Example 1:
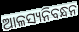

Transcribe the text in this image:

ଆଳସ୍ୟନିବନ୍ଧନ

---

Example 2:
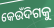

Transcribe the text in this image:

କେଉଁଦିଗକୁ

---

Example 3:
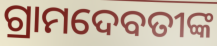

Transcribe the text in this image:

ଗ୍ରାମଦେବତୀଙ୍କ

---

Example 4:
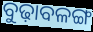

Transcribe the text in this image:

ବୁଢ଼ାବଳଙ୍ଗ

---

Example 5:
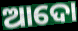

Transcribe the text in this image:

ଆଦୋ